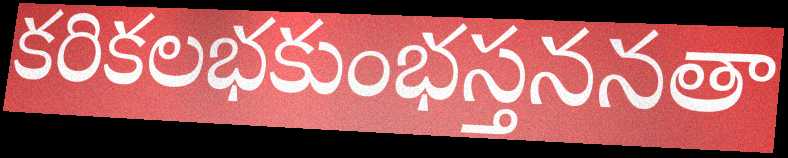
కరికలభకుంభస్తననతా